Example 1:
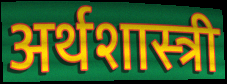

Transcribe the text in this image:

अर्थशास्त्री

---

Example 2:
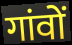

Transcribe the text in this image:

गांवों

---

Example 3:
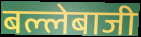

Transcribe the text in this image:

बल्लेबाजी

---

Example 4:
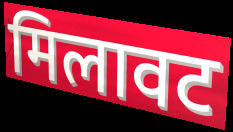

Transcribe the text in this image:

मिलावट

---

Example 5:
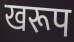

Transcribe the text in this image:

खरूप